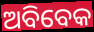
ଅବିବେକ